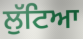
ਲੁੱਟਿਆ